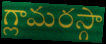
గ్లామరస్గా